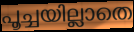
പൂച്ചയില്ലാതെ